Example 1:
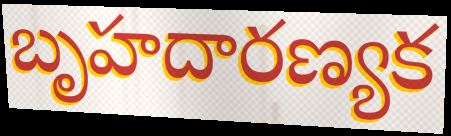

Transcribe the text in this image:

బృహదారణ్యక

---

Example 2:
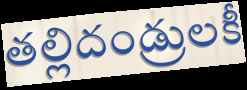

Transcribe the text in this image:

తల్లిదండ్రులకీ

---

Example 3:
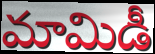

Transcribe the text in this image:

మామిడీ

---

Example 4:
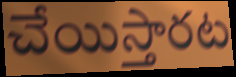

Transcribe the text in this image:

చేయిస్తారట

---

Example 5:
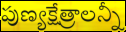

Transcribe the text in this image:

పుణ్యక్షేత్రాలన్నీ